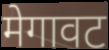
मेगावट